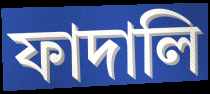
ফাদালি